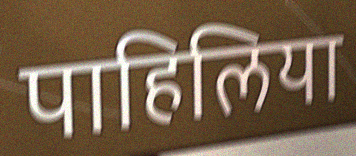
पाहिलिया